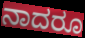
ನಾದರೂ